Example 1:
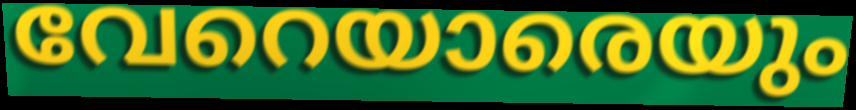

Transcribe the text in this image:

വേറെയാരെയും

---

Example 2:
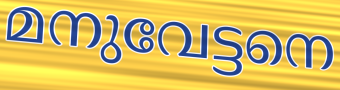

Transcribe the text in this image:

മനുവേട്ടനെ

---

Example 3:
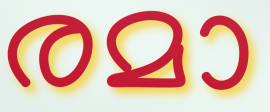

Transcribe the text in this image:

രമാ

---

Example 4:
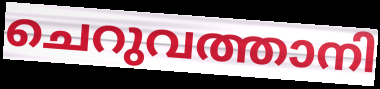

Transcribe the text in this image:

ചെറുവത്താനി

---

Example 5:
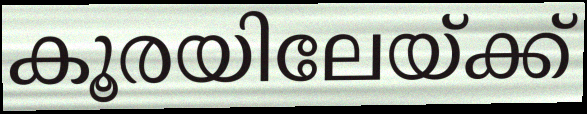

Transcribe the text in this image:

കൂരയിലേയ്ക്ക്